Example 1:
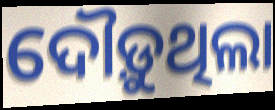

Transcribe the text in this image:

ଦୌଡ଼ୁଥିଲା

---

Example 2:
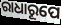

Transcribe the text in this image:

ରାଧାରୂପେ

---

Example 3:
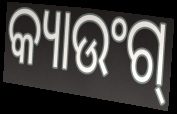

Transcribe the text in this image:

କ୍ୟାଉଂଗ୍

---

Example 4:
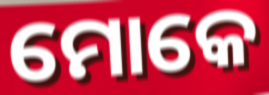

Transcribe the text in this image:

ମୋକେ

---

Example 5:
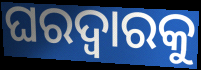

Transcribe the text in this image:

ଘରଦ୍ୱାରକୁ